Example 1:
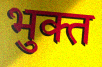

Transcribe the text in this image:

भुक्त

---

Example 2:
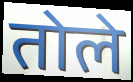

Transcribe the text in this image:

तोले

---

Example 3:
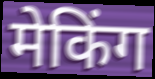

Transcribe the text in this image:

मेकिंग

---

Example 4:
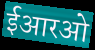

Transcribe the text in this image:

ईआरओ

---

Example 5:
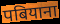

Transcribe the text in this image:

पबियाना